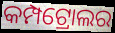
କମ୍ପଟ୍ରୋଲର